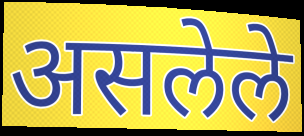
असलेले